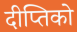
दीप्तिको